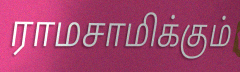
ராமசாமிக்கும்